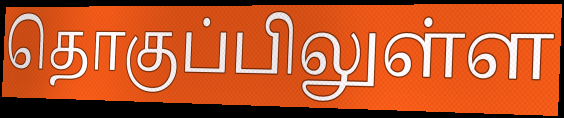
தொகுப்பிலுள்ள